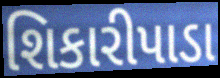
શિકારીપાડા